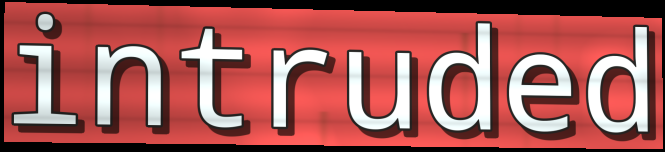
intruded